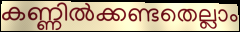
കണ്ണിൽക്കണ്ടതെല്ലാം